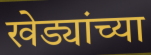
खेड्यांच्या